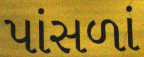
પાંસળાં